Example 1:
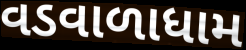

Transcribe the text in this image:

વડવાળાધામ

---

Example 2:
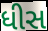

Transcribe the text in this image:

ધીસ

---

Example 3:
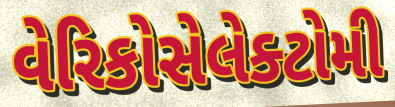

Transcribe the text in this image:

વેરિકોસેલેક્ટોમી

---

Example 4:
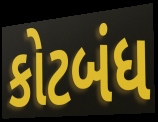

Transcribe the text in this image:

કોટબંધ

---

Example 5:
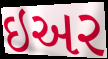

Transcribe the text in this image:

ઇઅર